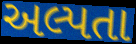
અલ્પતા